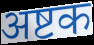
अष्टक